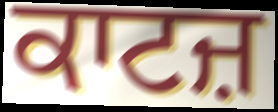
ਕਾਟਜ਼